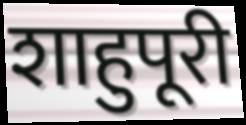
शाहुपूरी